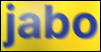
jabo